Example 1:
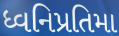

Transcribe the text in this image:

ધ્વનિપ્રતિમા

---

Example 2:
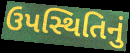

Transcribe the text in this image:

ઉપસ્થિતિનું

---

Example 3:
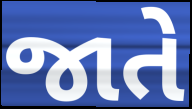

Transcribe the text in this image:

જાતે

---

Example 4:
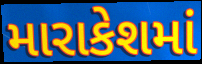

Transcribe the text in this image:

મારાકેશમાં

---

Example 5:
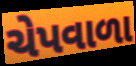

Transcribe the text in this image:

ચેપવાળા